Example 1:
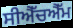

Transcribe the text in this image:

ਸੀਐੱਚਐੱਮ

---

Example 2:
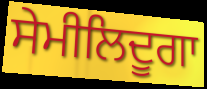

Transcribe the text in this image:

ਸੇਮੀਲਿਦੂਗਾ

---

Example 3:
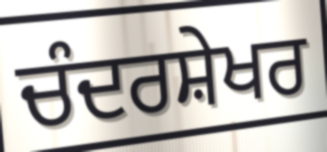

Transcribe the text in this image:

ਚੰਦਰਸ਼ੇਖਰ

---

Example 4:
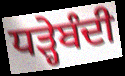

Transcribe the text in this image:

ਧੜ੍ਹੇਬੰਦੀ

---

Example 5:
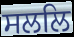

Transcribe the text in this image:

ਸਲਲਿ